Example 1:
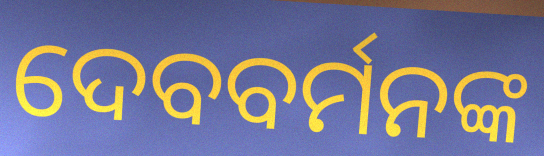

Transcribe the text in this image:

ଦେବବର୍ମନଙ୍କ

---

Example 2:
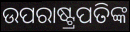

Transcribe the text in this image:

ଉପରାଷ୍ଟ୍ରପତିଙ୍କ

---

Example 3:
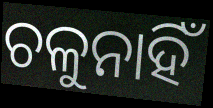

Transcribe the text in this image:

ଚଳୁନାହିଁ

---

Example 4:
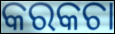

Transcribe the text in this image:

କରକଚା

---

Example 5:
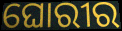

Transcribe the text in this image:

ଘୋରୀର